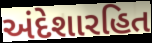
અંદેશારહિત